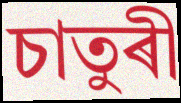
চাতুৰী